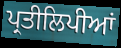
ਪ੍ਰਤੀਲਿਪੀਆਂ